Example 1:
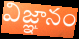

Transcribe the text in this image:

విజ్ఞానం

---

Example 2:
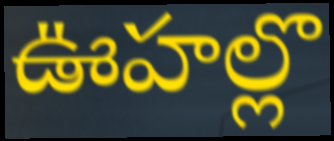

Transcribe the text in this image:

ఊహల్లొ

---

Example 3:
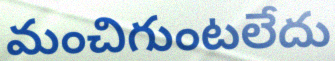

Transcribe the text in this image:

మంచిగుంటలేదు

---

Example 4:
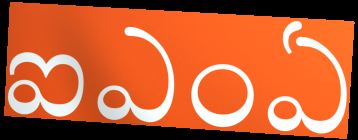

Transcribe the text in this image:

ఐఎంఏ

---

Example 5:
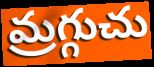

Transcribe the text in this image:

మ్రగ్గుచు